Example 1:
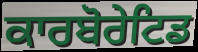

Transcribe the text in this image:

ਕਾਰਬੋਰੇਟਿਡ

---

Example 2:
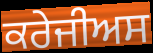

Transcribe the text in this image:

ਕਰੇਜੀਅਸ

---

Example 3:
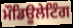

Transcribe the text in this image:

ਮੌਡਿਊਲੇਟਿੰਗ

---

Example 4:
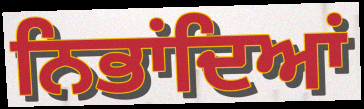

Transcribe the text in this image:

ਨਿਭਾਂਦਿਆਂ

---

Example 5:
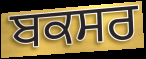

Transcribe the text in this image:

ਬਕਸਰ